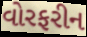
વોરફરીન